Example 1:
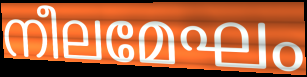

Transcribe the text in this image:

നീലമേഘം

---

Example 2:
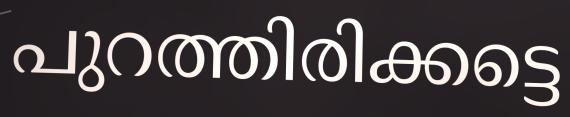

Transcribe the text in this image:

പുറത്തിരിക്കട്ടെ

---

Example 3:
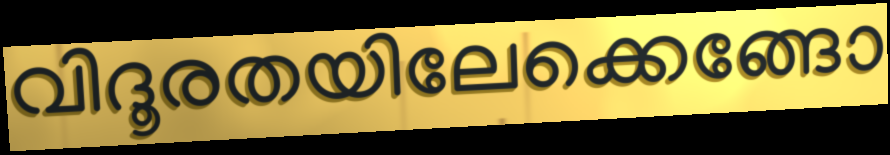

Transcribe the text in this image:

വിദൂരതയിലേക്കെങ്ങോ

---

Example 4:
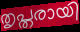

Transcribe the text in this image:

തൃപ്തരായി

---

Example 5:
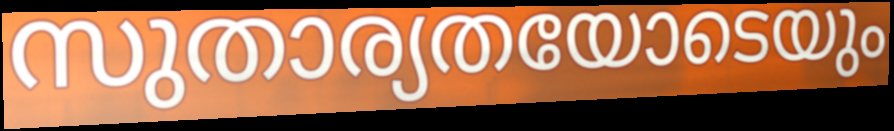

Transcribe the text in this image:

സുതാര്യതയോടെയും